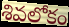
శివలోకం